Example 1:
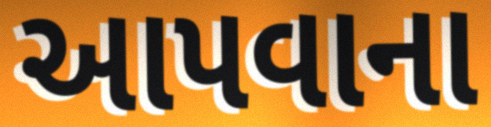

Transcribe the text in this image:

આપવાના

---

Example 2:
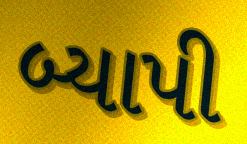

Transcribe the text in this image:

બ્યાપી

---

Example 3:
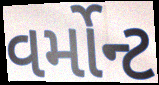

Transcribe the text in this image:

વર્મોન્ટ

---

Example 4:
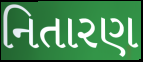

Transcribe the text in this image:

નિતારણ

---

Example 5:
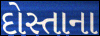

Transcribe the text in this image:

દોસ્તાના